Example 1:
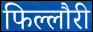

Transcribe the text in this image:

फिल्लौरी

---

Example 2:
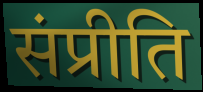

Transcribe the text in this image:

संप्रीति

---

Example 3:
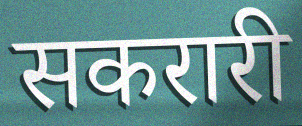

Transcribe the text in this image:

सकरारी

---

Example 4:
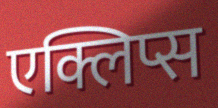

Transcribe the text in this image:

एक्लिप्स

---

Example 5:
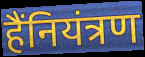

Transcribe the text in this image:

हैंनियंत्रण